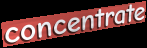
concentrate